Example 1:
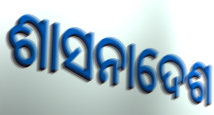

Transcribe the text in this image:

ଶାସନାଦେଶ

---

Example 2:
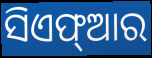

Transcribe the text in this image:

ସିଏଫ୍ଆର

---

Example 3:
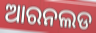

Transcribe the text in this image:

ଆରନଲଡ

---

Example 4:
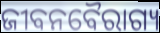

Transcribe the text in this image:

ଜୀବନବୈରାଗ୍ୟ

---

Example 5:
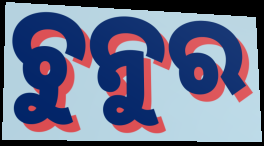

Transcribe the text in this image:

ଚୁନୁର